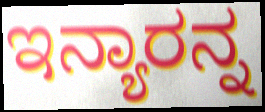
ಇನ್ಯಾರನ್ನ